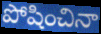
పోషించినా